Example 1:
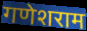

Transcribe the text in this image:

गणेशराम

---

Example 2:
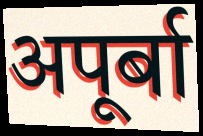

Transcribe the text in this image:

अपूर्बा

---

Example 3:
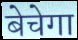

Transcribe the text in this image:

बेचेगा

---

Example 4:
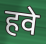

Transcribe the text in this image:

हवे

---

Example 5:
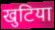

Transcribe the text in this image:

खुटिया